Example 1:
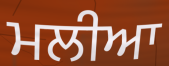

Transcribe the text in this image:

ਮਲੀਆ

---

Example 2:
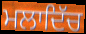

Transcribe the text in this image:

ਮਲਾਦਿੱਚ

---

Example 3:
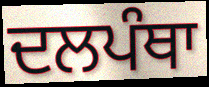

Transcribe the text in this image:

ਦਲਪੰਥਾ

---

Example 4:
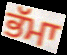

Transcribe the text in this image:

ਭੱਮਾ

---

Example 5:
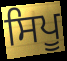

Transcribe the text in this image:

ਸਿਪੂ